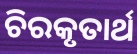
ଚିରକୃତାର୍ଥ